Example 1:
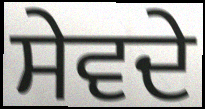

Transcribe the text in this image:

ਸੇਵਦੇ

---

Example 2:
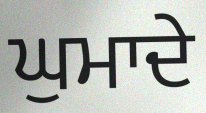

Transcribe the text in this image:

ਘੁਮਾਦੇ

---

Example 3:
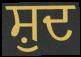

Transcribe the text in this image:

ਸ਼ੁਦ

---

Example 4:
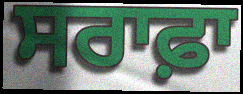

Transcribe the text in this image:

ਸਰਾਫ਼ਾ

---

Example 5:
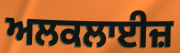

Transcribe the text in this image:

ਅਲਕਲਾਈਜ਼